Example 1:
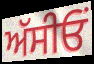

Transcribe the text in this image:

ਅੱਸੀਓਂ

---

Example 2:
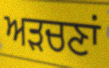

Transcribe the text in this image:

ਅੜਚਣਾਂ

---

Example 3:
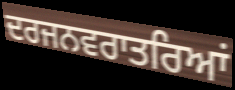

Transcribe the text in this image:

ਦਰਜਨਵਰਾਤਰਿਆਂ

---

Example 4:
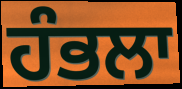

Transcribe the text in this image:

ਹੰਭਲਾ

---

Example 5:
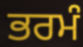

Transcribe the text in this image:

ਭਰਮੰ